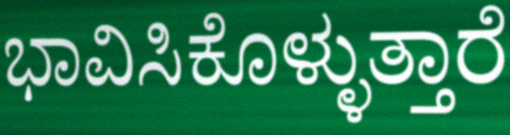
ಭಾವಿಸಿಕೊಳ್ಳುತ್ತಾರೆ